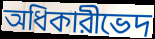
অধিকারীভেদ